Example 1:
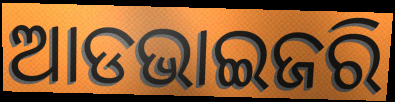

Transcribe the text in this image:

ଆଡଭାଇଜରି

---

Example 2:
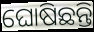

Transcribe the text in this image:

ଘୋଷିଛନ୍ତି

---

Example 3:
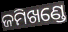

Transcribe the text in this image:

ଜମିଖଣ୍ଡେ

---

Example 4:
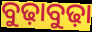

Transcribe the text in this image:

ବୁଢ଼ାବୁଢ଼ା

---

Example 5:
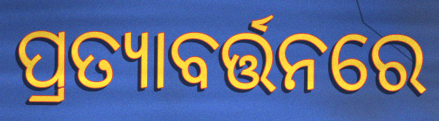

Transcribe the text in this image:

ପ୍ରତ୍ୟାବର୍ତ୍ତନରେ